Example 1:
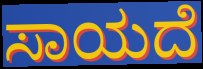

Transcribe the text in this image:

ಸಾಯದೆ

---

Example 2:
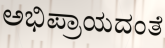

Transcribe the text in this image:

ಅಭಿಪ್ರಾಯದಂತೆ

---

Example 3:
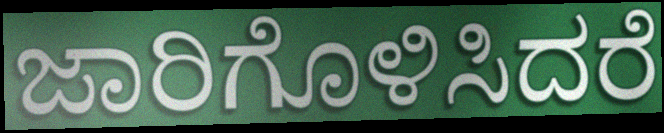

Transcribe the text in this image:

ಜಾರಿಗೊಳಿಸಿದರೆ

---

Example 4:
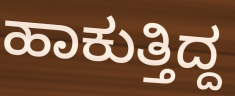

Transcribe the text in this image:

ಹಾಕುತ್ತಿದ್ದ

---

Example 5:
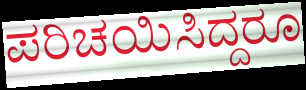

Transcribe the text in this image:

ಪರಿಚಯಿಸಿದ್ದರೂ